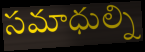
సమాధుల్ని